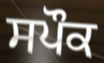
ਸਪੌਕ